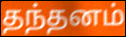
தந்தனம்